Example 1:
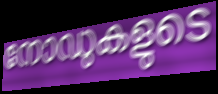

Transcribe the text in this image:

നോഡുകളുടെ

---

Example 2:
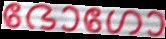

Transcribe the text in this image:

ഭോഗോ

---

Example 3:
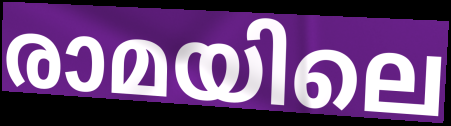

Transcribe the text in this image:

രാമയിലെ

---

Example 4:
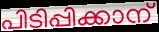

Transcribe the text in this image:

പിടിപ്പിക്കാന്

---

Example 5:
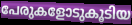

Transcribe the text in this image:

പേരുകളോടുകൂടിയ